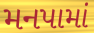
મનપામાં